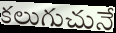
కలుగుచునే